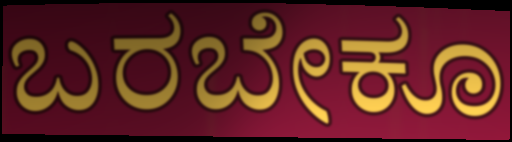
ಬರಬೇಕೂ